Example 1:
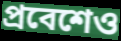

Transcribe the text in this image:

প্রবেশেও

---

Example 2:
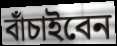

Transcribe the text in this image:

বাঁচাইবেন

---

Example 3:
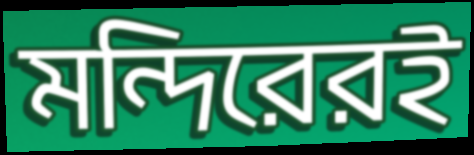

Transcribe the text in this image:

মন্দিরেরই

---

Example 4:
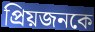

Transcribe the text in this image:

প্রিয়জনকে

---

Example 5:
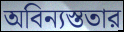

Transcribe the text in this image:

অবিন্যস্ততার